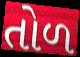
તોળ